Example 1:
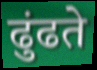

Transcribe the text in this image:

ढुंढते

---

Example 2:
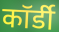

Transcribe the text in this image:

कॉर्डी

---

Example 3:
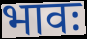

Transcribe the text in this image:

भावः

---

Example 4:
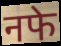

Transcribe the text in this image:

नफे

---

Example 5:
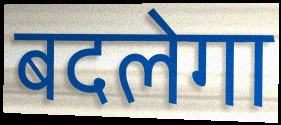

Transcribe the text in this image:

बदलेगा